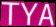
TYA